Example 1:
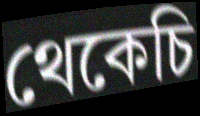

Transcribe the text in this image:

থেকেচি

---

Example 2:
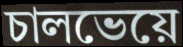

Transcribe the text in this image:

চালভেয়ে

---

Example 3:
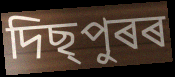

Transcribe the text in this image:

দিছ্পুৰৰ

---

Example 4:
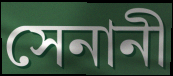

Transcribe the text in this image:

সেনানী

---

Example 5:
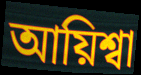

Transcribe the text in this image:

আয়িশ্বা